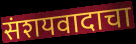
संशयवादाचा